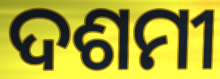
ଦଶମୀ